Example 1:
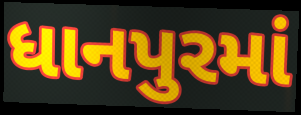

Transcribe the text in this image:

ધાનપુરમાં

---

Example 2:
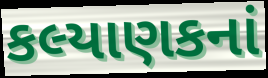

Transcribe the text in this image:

કલ્યાણકનાં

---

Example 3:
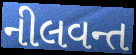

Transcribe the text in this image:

નીલવન્ત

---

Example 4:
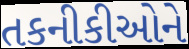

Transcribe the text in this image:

તકનીકીઓને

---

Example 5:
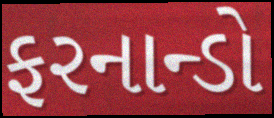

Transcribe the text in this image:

ફરનાન્ડો